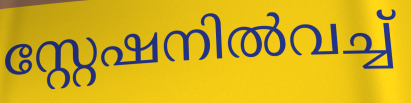
സ്റ്റേഷനിൽവച്ച്